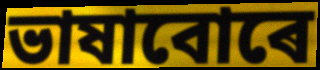
ভাষাবোৰে